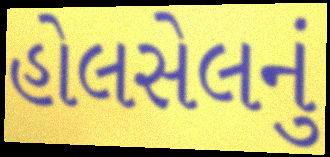
હોલસેલનું